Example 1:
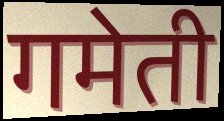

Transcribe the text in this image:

गमेती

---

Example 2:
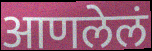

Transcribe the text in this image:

आणलेलं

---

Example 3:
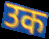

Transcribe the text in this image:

उक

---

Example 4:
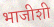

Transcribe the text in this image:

भाजीशी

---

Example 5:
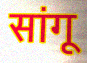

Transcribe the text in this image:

सांगू